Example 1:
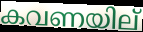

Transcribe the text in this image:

കവണയില്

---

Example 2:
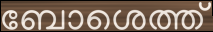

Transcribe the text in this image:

ബോശെത്ത്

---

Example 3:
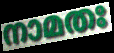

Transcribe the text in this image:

നാമതഃ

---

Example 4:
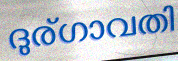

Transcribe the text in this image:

ദുര്ഗാവതി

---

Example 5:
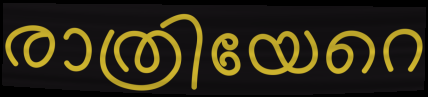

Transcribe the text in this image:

രാത്രിയേറെ